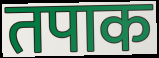
तपाक